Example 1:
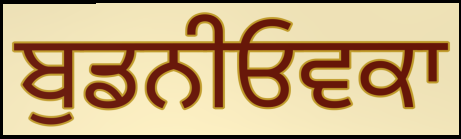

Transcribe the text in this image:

ਬੁਡਨੀਓਵਕਾ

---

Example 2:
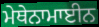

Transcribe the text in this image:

ਮੇਥੇਨਾਮਾਈਨ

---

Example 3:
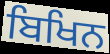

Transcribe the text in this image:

ਬਿਖਿਨ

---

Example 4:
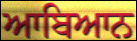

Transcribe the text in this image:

ਆਬਿਆਨ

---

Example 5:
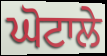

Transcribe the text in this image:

ਘੋਟਾਲੇ